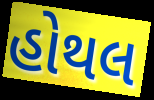
હોથલ